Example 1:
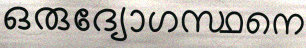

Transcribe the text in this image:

ഒരുദ്യോഗസ്ഥനെ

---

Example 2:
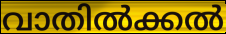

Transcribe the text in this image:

വാതിൽക്കൽ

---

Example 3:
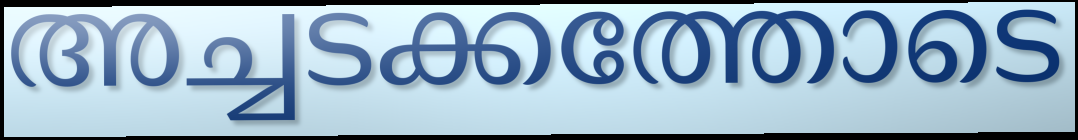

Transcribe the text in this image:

അച്ചടക്കത്തോടെ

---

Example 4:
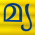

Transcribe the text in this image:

മ്യ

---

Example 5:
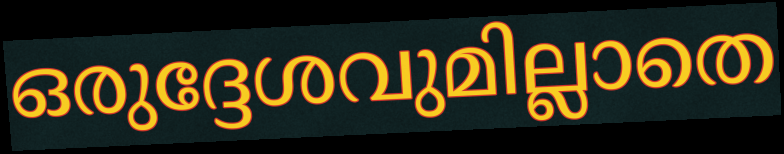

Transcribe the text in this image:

ഒരുദ്ദേശവുമില്ലാതെ